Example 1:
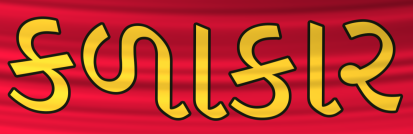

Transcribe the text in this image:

કળાકાર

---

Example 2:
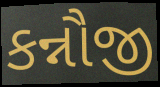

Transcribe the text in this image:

કન્નૌજી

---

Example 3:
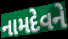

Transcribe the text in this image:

નામદેવને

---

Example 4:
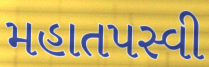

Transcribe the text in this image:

મહાતપસ્વી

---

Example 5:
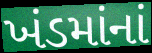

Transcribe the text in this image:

ખંડમાંનાં